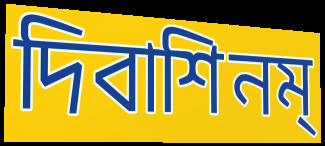
দিবাশিনম্